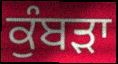
ਕੁੰਬੜਾ